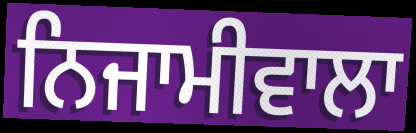
ਨਿਜਾਮੀਵਾਲਾ